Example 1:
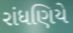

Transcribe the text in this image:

રાંધણિયે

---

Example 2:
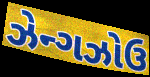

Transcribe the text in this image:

ઝેન્ગઝોઉ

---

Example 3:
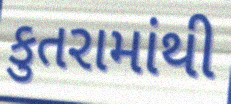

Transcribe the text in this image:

કુતરામાંથી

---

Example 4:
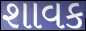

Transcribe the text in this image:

શાવક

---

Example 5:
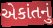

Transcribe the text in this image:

એકાંતનું